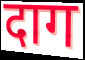
दाग